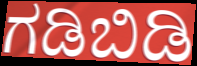
ಗಡಿಬಿಡಿ